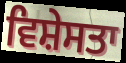
ਵਿਸ਼ੇਸਤਾ